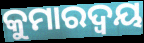
କୁମାରଦ୍ଵୟ